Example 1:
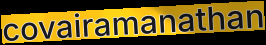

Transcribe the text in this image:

covairamanathan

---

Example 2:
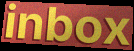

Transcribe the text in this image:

inbox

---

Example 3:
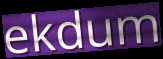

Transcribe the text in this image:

ekdum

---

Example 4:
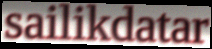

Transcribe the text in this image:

sailikdatar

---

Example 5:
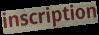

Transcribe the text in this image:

inscription